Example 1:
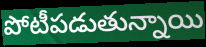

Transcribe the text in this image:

పోటీపడుతున్నాయి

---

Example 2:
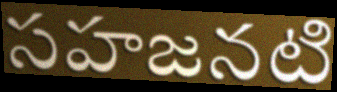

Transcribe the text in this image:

సహజనటి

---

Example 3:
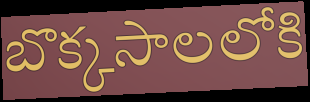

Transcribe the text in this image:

బొక్కసాలలోకి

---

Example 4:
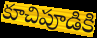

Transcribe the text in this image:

కూచిపూడికి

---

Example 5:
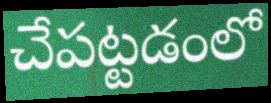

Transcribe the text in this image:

చేపట్టడంలో